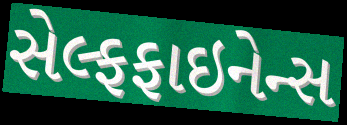
સેલ્ફફાઇનેન્સ